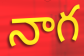
నాగ